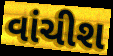
વાંચીશ